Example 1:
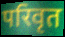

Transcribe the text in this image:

परिवृत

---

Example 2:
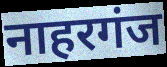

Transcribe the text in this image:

नाहरगंज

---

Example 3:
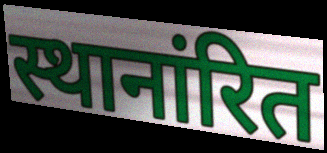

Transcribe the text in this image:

स्थानांरित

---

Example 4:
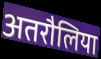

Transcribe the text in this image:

अतरौलिया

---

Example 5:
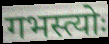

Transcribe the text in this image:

गभस्त्योः